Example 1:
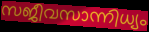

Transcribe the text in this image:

സജീവസാന്നിധ്യം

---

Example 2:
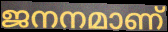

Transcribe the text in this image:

ജനനമാണ്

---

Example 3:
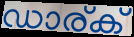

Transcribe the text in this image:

ഡാര്ക്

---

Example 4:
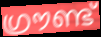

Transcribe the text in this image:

ഗ്രൗണ്ട്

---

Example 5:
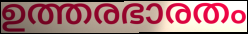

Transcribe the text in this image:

ഉത്തരഭാരതം